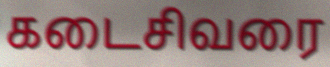
கடைசிவரை